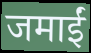
जमाईं